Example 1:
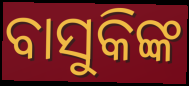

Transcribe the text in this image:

ବାସୁକିଙ୍କ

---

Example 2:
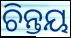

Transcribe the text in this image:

ଚିନ୍ତୟ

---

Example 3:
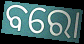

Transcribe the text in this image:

ବରୋ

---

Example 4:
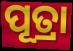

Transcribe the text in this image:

ପୂତ୍ରା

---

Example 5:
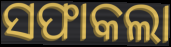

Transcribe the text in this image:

ସଫାକଲା